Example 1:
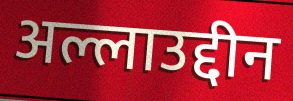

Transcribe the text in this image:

अल्लाउद्दीन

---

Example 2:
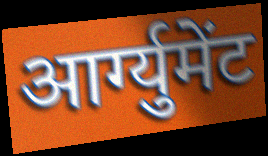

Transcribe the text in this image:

आर्ग्युमेंट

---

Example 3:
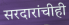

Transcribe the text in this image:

सरदारांचीही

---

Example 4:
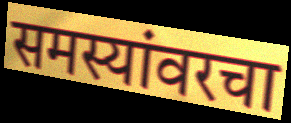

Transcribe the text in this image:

समस्यांवरचा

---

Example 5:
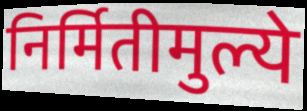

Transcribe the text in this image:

निर्मितीमुल्ये